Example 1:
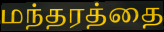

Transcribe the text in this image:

மந்தரத்தை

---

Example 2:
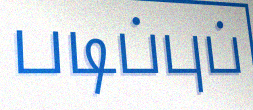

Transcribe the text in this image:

படிப்புப்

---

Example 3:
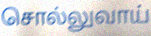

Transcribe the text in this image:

சொல்லுவாய்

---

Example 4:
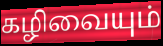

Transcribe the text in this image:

கழிவையும்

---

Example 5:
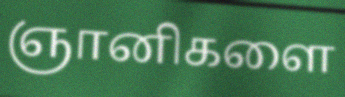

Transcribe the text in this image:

ஞானிகளை